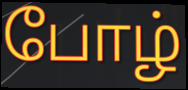
போழ்